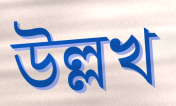
উল্লখ